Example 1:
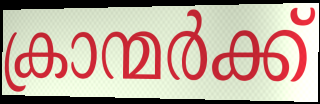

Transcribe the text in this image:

ക്രാന്മർക്ക്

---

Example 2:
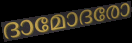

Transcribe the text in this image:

ദാമോദരോ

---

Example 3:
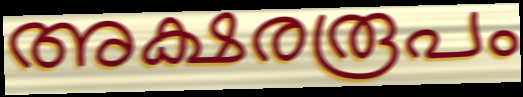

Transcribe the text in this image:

അക്ഷരരൂപം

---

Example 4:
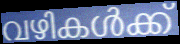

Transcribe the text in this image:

വഴികൾക്ക്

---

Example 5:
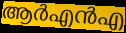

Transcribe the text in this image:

ആർഎൻഎ